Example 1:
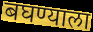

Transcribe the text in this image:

बघण्याला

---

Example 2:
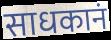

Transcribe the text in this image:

साधकानं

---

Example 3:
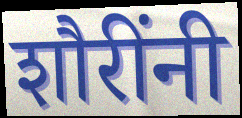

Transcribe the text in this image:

शौरींनी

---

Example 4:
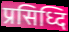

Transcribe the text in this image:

प्रसिध्दि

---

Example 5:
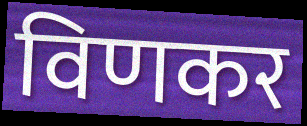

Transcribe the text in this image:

विणकर